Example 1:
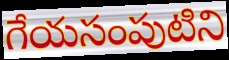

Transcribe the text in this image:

గేయసంపుటిని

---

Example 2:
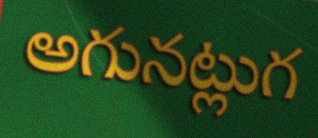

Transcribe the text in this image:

అగునట్లుగ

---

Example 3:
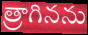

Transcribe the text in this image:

త్రాగినను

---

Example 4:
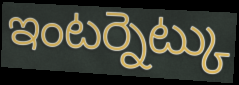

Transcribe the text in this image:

ఇంటర్నెట్కు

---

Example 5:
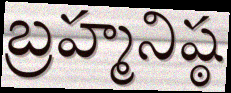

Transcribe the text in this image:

బ్రహ్మనిష్ఠ